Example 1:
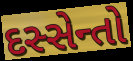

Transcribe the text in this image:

દસ્સેન્તો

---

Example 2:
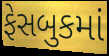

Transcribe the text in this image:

ફેસબુકમાં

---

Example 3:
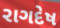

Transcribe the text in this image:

રાગદેષ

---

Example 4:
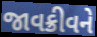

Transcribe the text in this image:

જાવક્રીવને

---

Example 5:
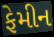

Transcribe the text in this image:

ફેમીન